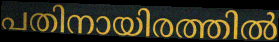
പതിനായിരത്തിൽ